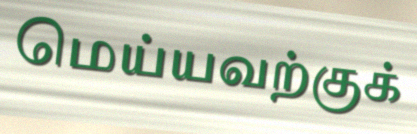
மெய்யவற்குக்